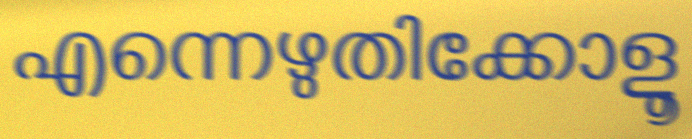
എന്നെഴുതിക്കോളൂ